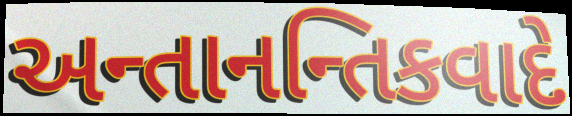
અન્તાનન્તિકવાદે